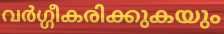
വർഗ്ഗീകരിക്കുകയും